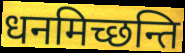
धनमिच्छन्ति